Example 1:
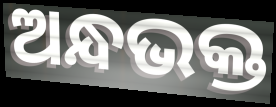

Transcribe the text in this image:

ଅନ୍ଧଭକ୍ତ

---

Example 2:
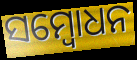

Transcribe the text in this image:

ସମ୍ବୋଧନ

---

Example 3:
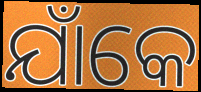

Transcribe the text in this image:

ଯାଁକେ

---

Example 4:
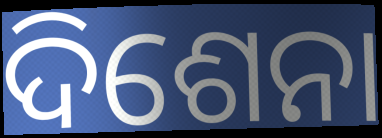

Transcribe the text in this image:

ଦିଶେନା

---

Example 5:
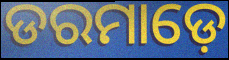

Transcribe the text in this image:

ଡରମାଡ଼େ